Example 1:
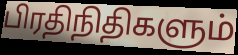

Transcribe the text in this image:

பிரதிநிதிகளும்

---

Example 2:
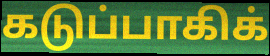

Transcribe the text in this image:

கடுப்பாகிக்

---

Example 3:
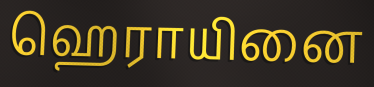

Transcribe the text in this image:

ஹெராயினை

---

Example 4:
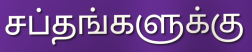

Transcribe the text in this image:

சப்தங்களுக்கு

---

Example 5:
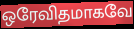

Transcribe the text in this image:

ஒரேவிதமாகவே